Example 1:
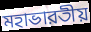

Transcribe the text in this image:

মহাভারতীয়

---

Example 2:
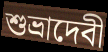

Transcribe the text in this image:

শুভ্রাদেবী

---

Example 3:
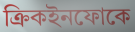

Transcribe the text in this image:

ক্রিকইনফোকে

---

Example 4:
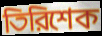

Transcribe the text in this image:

তিরিশেক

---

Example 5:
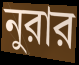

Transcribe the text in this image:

নুরার